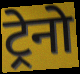
ट्रेनो